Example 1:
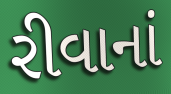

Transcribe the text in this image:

રીવાનાં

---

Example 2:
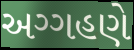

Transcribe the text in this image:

અગ્ગહણે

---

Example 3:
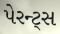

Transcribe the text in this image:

પેરન્ટ્સ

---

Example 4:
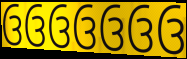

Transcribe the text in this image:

ઉઉઉઉઉઉઉ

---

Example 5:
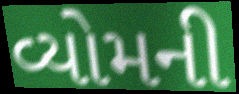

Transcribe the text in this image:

વ્યોમની